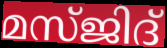
മസ്ജിദ്